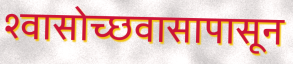
श्वासोच्छवासापासून